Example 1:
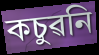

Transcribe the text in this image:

কচুৱনি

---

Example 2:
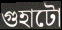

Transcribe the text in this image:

গুহাটো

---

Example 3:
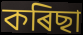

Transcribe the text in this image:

কৰিছা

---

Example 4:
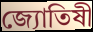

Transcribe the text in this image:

জ্যোতিষী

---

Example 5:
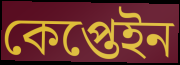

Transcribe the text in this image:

কেপ্তেইন